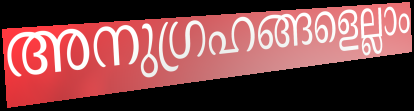
അനുഗ്രഹങ്ങളെല്ലാം